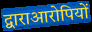
द्वाराआरोपियों